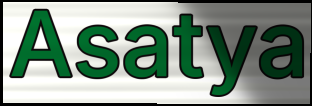
Asatya